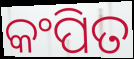
କଂପିତ